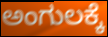
ಅಂಗುಲಕ್ಕೆ